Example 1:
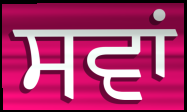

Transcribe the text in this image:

ਸਵਾਂ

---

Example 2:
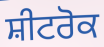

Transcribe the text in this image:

ਸ਼ੀਟਰੋਕ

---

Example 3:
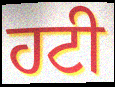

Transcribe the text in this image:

ਹਟੀ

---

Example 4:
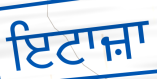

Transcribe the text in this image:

ਇਟਾਜ਼ਾ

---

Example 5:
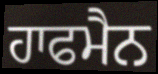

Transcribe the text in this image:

ਹਾਫਮੈਨ